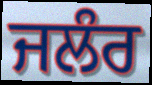
ਜਲੰਰ